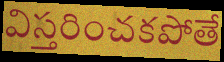
విస్తరించకపోతే